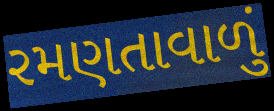
રમણતાવાળું